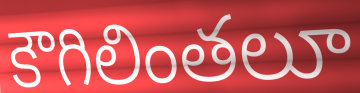
కౌగిలింతలూ